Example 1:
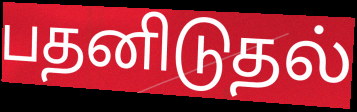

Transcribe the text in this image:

பதனிடுதல்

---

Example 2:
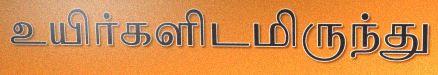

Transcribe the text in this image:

உயிர்களிடமிருந்து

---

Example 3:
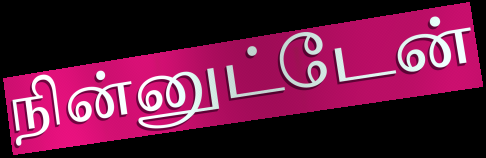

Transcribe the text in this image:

நின்னுட்டேன்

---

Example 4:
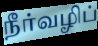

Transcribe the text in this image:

நீர்வழிப்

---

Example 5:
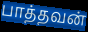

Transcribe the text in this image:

பாத்தவன்